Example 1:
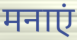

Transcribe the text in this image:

मनाएं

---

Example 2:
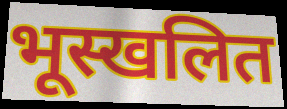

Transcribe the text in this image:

भूस्खलित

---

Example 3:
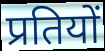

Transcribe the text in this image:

प्रतियों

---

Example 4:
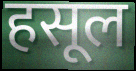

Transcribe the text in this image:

हसूल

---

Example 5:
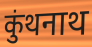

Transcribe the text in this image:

कुंथनाथ